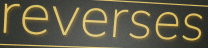
reverses